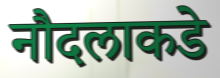
नौदलाकडे